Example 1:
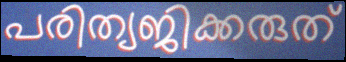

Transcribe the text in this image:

പരിത്യജിക്കരുത്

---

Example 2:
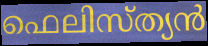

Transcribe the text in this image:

ഫെലിസ്ത്യൻ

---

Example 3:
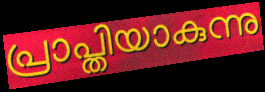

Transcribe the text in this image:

പ്രാപ്തിയാകുന്നു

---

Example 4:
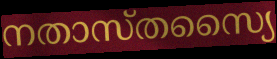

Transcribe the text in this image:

നതാസ്തസ്യൈ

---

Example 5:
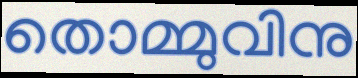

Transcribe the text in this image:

തൊമ്മുവിനു